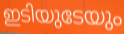
ഇടിയുടേയും